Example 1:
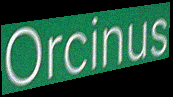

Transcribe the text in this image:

Orcinus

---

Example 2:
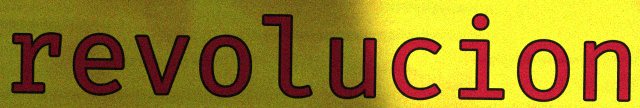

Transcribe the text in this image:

revolucion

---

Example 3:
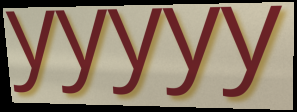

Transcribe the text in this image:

yyyyy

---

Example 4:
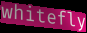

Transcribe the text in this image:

whitefly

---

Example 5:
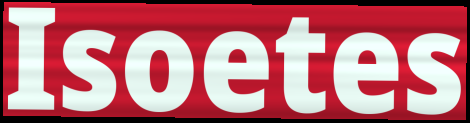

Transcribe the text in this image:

Isoetes